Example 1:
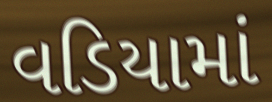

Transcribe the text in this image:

વડિયામાં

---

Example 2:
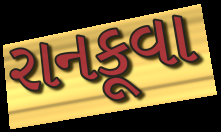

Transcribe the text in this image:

રાનકૂવા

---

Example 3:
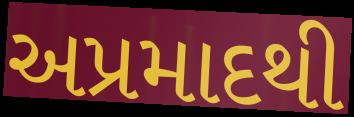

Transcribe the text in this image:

અપ્રમાદથી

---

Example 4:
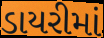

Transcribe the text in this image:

ડાયરીમાં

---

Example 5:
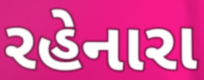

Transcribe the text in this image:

રહેનારા